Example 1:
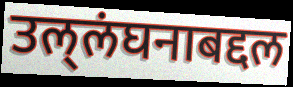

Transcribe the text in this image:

उल्लंघनाबद्दल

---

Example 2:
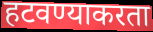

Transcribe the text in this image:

हटवण्याकरता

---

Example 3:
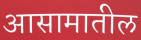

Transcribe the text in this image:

आसामातील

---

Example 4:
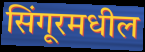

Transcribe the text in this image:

सिंगूरमधील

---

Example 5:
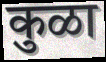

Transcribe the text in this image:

कुळा